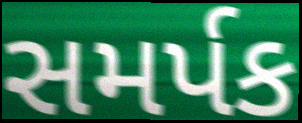
સમર્પક